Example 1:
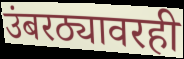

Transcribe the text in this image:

उंबरठ्यावरही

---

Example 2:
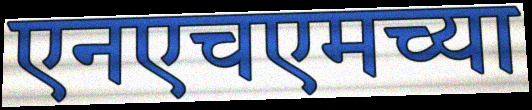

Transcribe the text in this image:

एनएचएमच्या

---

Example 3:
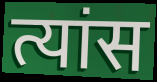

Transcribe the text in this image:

त्यांस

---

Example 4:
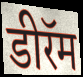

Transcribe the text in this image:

डीरॅम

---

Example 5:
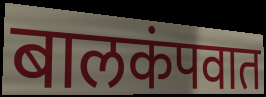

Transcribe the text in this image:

बालकंपवात